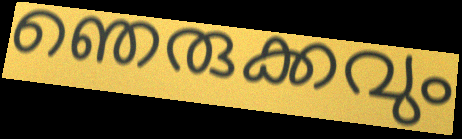
ഞെരുക്കവും